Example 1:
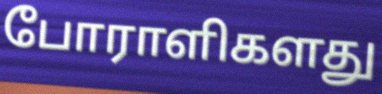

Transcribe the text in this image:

போராளிகளது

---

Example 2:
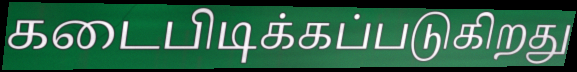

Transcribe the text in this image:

கடைபிடிக்கப்படுகிறது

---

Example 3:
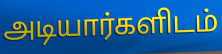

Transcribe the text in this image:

அடியார்களிடம்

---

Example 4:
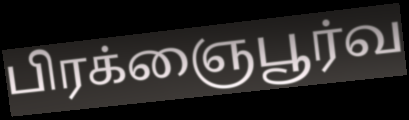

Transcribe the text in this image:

பிரக்ஞைபூர்வ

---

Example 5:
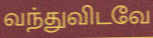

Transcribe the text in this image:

வந்துவிடவே